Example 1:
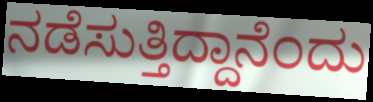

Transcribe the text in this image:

ನಡೆಸುತ್ತಿದ್ದಾನೆಂದು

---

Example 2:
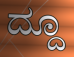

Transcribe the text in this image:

ದ್ದೂ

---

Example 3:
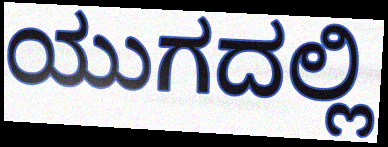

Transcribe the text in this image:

ಯುಗದಲ್ಲಿ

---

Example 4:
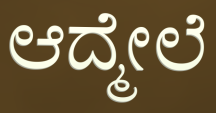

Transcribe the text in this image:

ಆದ್ಮೇಲೆ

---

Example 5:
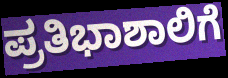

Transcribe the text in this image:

ಪ್ರತಿಭಾಶಾಲಿಗೆ